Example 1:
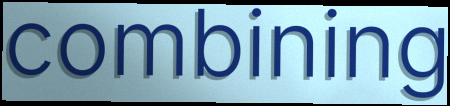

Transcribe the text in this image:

combining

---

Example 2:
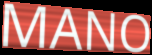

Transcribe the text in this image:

MANO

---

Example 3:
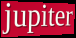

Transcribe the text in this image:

jupiter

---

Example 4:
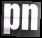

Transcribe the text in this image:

pn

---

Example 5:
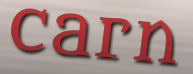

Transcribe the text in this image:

carn